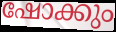
ഷോക്കും